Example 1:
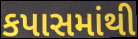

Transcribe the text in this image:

કપાસમાંથી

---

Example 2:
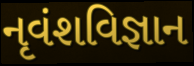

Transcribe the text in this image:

નૃવંશવિજ્ઞાન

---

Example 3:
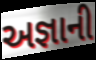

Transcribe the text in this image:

અજ્ઞાની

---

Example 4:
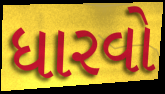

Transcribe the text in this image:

ધારવો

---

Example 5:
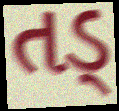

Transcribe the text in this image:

તડ્